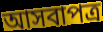
আসবাপত্র